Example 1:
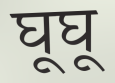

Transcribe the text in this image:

घूघू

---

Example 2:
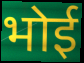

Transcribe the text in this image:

भोई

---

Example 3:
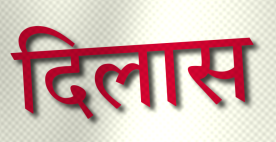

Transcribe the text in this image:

दिलास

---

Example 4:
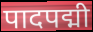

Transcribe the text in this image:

पादपद्मी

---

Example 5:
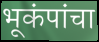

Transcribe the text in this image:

भूकंपांचा